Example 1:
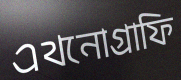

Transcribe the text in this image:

এথনোগ্রাফি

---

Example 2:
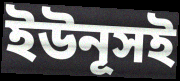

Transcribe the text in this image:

ইউনূসই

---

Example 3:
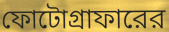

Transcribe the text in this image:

ফোটোগ্রাফারের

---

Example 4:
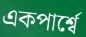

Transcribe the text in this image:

একপার্শ্বে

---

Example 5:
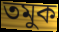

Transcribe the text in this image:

তমুক